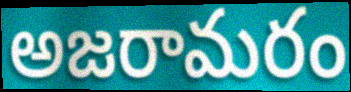
అజరామరం